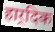
हार्दिक